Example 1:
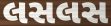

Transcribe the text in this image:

લસલસ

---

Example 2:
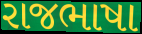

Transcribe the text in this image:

રાજભાષા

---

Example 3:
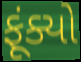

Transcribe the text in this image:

ફૂંક્યો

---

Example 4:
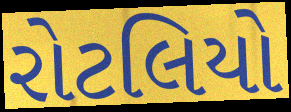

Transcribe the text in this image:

રોટલિયો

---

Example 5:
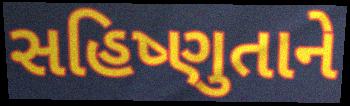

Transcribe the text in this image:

સહિષ્ણુતાને